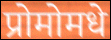
प्रोमोमधे